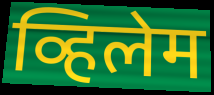
व्हिलेम